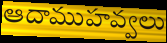
ఆదాముహవ్వలు